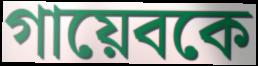
গায়েবকে